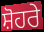
ਸ਼ੋਹਰੇ